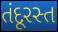
તંદૂરસ્ત